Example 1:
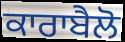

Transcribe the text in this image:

ਕਾਰਾਬੈਲੋ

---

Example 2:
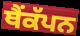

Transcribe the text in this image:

ਥੈਂਕੱਪਨ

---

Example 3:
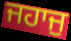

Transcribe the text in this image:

ਜਹਾਜੁ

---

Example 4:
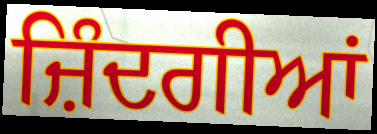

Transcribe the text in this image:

ਜ਼ਿੰਦਗੀਆਂ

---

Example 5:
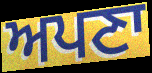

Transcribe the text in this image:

ਅਪਣਾ